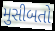
મુસીબતો